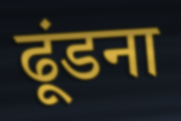
ढूंडना